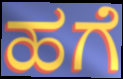
ಹಗೆ